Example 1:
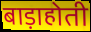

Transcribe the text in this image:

बाड़ाहोती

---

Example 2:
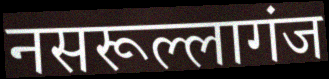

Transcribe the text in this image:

नसरूल्लागंज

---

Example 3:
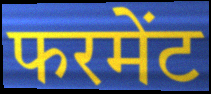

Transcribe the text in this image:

फरमेंट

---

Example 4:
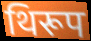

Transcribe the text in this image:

थिरूप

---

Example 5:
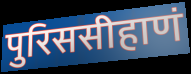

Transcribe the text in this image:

पुरिससीहाणं